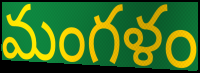
మంగళం